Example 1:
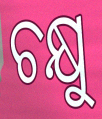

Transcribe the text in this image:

ଚକ୍ଷୁ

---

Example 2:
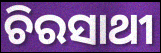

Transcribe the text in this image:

ଚିରସାଥୀ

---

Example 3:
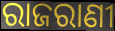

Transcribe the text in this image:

ରାଜରାଣୀ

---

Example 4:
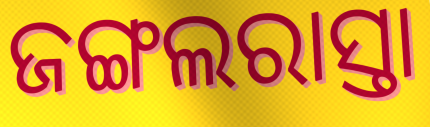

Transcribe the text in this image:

ଜଙ୍ଗଲରାସ୍ତା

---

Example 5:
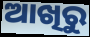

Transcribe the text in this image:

ଆଖିରୁ